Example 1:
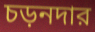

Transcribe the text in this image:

চড়নদার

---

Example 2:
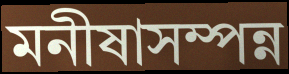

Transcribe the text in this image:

মনীষাসম্পন্ন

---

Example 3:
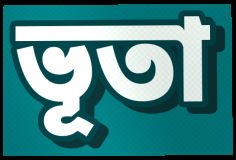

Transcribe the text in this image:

ভূতা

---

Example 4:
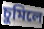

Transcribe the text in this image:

চুমিলে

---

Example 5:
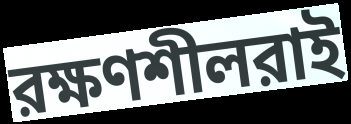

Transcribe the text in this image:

রক্ষণশীলরাই